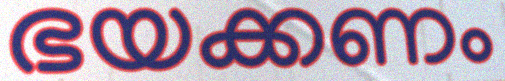
ഭയക്കണം